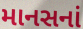
માનસનાં